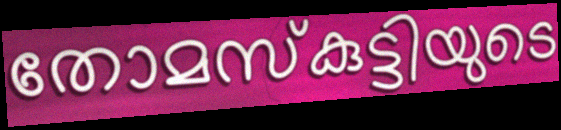
തോമസ്കുട്ടിയുടെ